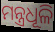
ମନ୍ତ୍ରଧୂଳି